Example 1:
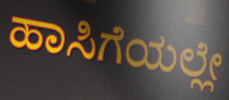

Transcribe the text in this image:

ಹಾಸಿಗೆಯಲ್ಲೇ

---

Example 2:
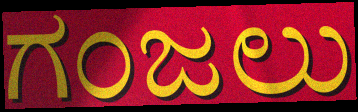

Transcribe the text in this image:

ಗಂಜಲು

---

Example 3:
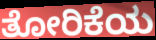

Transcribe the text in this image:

ತೋರಿಕೆಯ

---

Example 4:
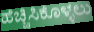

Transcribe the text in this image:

ಹೆಚ್ಚಿಸಿಕೊಳ್ಳಲು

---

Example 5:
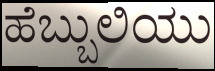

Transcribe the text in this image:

ಹೆಬ್ಬುಲಿಯು